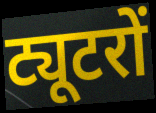
ट्यूटरों